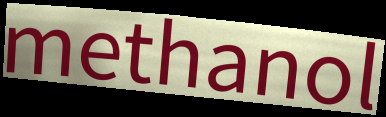
methanol